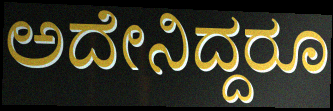
ಅದೇನಿದ್ದರೂ